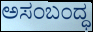
ಅಸಂಬಂದ್ಧ